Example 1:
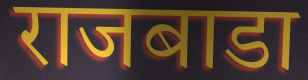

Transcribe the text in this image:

राजबाडा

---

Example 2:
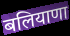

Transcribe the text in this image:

बलियाणा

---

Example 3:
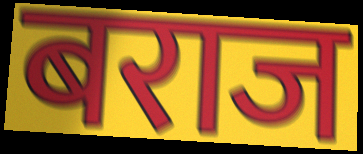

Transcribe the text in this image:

बराज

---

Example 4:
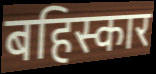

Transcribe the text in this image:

बहिस्कार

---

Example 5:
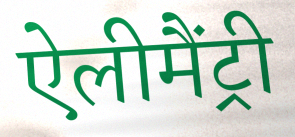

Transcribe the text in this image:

ऐलीमैंट्री